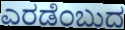
ಎರಡೆಂಬುದ